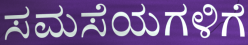
ಸಮಸೆಯಗಳಿಗೆ